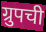
ग्रुपची